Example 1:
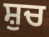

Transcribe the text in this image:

ਸ਼ੁਚ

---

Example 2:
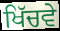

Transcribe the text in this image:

ਖਿੱਚਵੇ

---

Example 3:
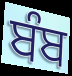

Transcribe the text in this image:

ਬੰਬ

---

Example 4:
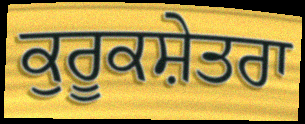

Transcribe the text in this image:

ਕੁਰੂਕਸ਼ੇਤਰਾ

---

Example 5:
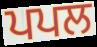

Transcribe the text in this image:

ਪਪਲ